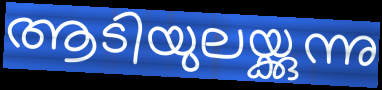
ആടിയുലയ്ക്കുന്നു